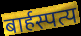
बार्हस्पत्य